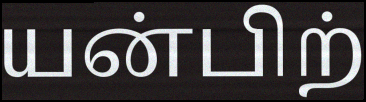
யன்பிற்